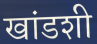
खांडशी